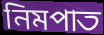
নিমপাত